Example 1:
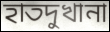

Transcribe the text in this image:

হাতদুখানা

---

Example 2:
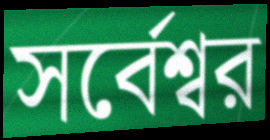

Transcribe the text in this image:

সর্বেশ্বর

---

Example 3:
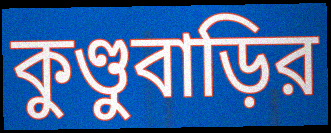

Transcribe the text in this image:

কুণ্ডুবাড়ির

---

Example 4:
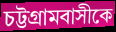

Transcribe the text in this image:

চট্টগ্রামবাসীকে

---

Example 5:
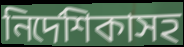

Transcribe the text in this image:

নির্দেশিকাসহ